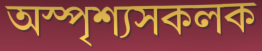
অস্পৃশ্যসকলক